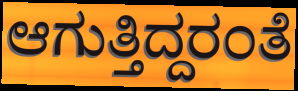
ಆಗುತ್ತಿದ್ದರಂತೆ